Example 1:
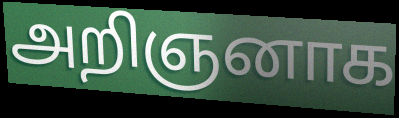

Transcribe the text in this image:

அறிஞனாக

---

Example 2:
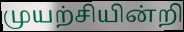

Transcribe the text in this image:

முயற்சியின்றி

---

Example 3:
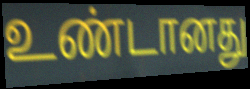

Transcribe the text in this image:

உண்டானது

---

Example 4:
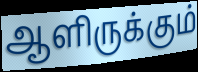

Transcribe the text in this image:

ஆளிருக்கும்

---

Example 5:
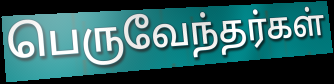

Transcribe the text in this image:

பெருவேந்தர்கள்